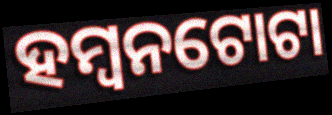
ହମ୍ବନଟୋଟା